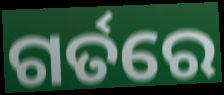
ଗର୍ତରେ